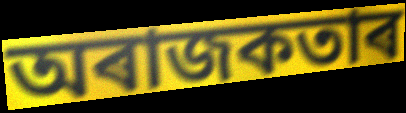
অৰাজকতাৰ